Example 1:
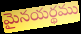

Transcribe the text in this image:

మైనయర్థము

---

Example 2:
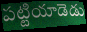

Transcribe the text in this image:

పట్టియాడెడు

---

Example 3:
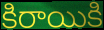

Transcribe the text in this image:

కిరాయికి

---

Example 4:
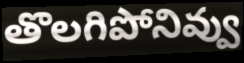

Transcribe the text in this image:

తొలగిపోనివ్వు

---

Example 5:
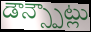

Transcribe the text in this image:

డౌన్స్పౌట్లు